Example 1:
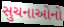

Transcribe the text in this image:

સુચનાઓનો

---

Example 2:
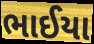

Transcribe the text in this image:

ભાઈયા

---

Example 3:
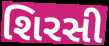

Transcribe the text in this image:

શિરસી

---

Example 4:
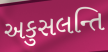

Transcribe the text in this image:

અકુસલન્તિ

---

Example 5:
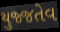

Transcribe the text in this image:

યુજ્જતેવ